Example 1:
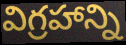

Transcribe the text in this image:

విగ్రహాన్ని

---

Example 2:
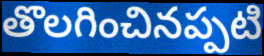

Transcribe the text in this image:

తొలగించినప్పటి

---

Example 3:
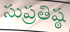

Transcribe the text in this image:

సుప్రతిష్ఠ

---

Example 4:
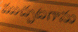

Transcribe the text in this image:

ముచ్చటగాను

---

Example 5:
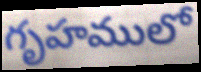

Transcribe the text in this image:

గృహములో